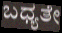
ಬಧ್ಯತೇ